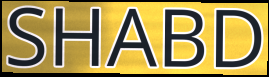
SHABD